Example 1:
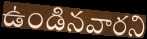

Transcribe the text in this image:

ఉండినవారని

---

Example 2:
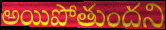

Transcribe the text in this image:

అయిపోతుందని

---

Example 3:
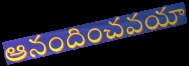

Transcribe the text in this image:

ఆనందించవయా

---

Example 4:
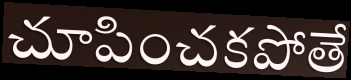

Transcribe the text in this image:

చూపించకపోతే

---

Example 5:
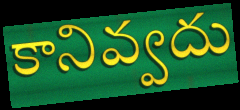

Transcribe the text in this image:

కానివ్వదు